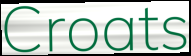
Croats